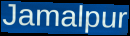
Jamalpur